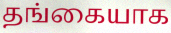
தங்கையாக